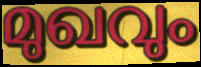
മുഖവും